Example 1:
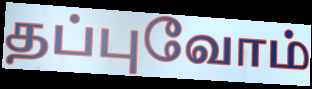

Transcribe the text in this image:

தப்புவோம்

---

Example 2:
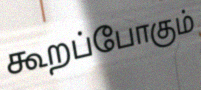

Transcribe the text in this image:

கூறப்போகும்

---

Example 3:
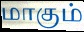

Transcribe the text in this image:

மாகும்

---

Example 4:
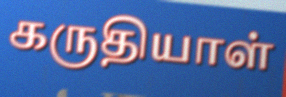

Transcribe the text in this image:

கருதியாள்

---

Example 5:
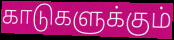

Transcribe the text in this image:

காடுகளுக்கும்